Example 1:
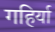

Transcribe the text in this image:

गहिर्या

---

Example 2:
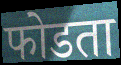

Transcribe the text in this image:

फोडता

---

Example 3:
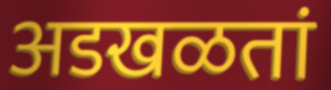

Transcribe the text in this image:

अडखळतां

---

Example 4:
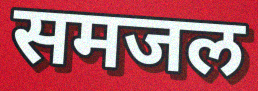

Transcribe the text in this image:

समजल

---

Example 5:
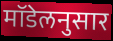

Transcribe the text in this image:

मॉडेलनुसार